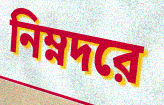
নিম্নদরে